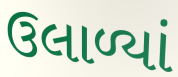
ઉલાળ્યાં